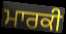
ਮਾਰਕੀ